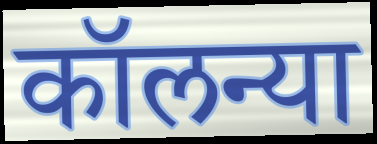
कॉलन्या